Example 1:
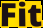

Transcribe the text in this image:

Fit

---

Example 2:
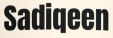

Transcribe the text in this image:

Sadiqeen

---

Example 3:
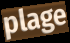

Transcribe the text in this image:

plage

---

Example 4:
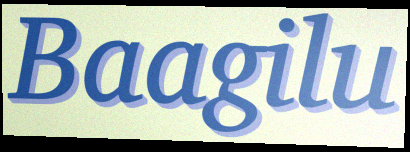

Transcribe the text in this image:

Baagilu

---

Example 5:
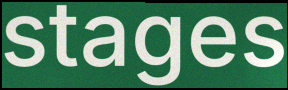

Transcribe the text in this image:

stages